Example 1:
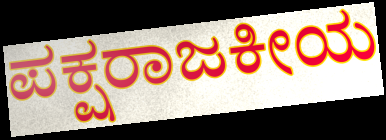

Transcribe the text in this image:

ಪಕ್ಷರಾಜಕೀಯ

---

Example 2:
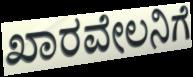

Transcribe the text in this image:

ಖಾರವೇಲನಿಗೆ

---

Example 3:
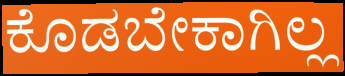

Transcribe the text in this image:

ಕೊಡಬೇಕಾಗಿಲ್ಲ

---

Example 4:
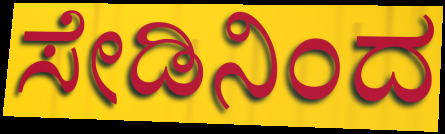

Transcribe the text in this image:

ಸೇಡಿನಿಂದ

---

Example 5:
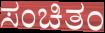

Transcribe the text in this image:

ಸಂಚಿತಂ